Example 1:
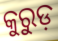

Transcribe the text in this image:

କୁରୁଡ଼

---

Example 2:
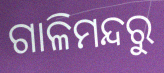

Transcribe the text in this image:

ଗାଳିମନ୍ଦରୁ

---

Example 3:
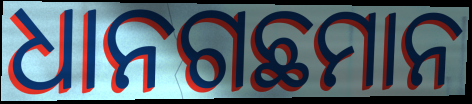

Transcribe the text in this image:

ଧାନଗଛମାନ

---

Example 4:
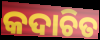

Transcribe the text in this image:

କଦାଚିତ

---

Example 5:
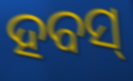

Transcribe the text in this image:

ହବସ୍